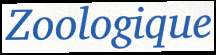
Zoologique